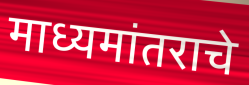
माध्यमांतराचे